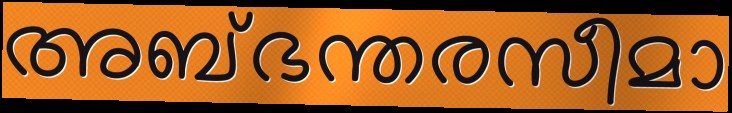
അബ്ഭന്തരസീമാ